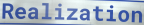
Realization